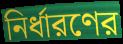
নির্ধারণের